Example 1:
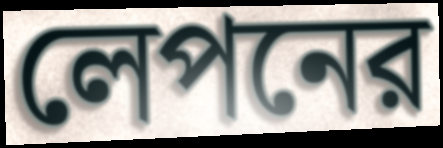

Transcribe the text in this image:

লেপনের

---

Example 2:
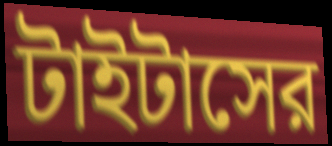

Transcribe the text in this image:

টাইটাসের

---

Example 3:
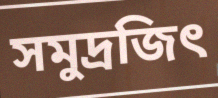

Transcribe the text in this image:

সমুদ্রজিৎ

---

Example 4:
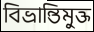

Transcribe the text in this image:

বিভ্রান্তিমুক্ত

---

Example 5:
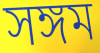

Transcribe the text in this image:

সঙ্গম